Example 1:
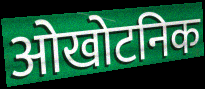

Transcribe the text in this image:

ओखोटनिक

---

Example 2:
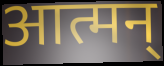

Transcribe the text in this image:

आत्मन्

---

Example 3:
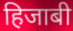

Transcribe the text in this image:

हिजाबी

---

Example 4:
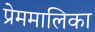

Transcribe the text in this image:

प्रेममालिका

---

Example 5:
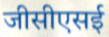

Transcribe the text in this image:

जीसीएसई